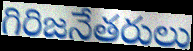
గిరిజనేతరులు